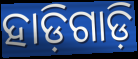
ହାଡ଼ିଗାଡ଼ି